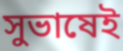
সুভাষেই